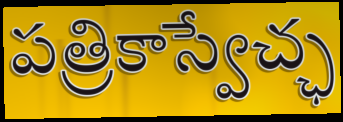
పత్రికాస్వేచ్ఛ